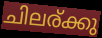
ചിലര്ക്കു